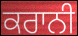
ਕਰਾਨੀ